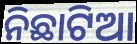
ନିଛାଟିଆ